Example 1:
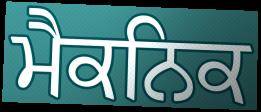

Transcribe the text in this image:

ਮੈਕਨਿਕ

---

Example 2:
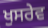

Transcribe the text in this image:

ਖੁਸਰੇਵ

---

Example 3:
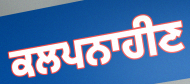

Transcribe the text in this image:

ਕਲਪਨਾਹੀਣ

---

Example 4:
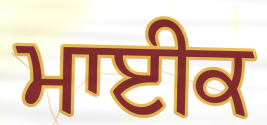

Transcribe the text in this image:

ਮਾਈਕ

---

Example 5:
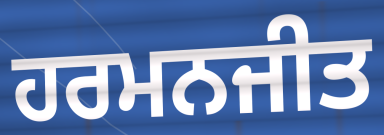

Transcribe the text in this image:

ਹਰਮਨਜੀਤ